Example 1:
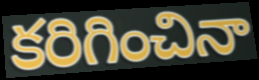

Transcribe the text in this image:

కరిగించినా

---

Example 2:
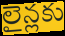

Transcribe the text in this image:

లైన్లకు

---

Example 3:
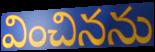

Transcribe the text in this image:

వించినను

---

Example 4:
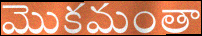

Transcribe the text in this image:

మొకమంతా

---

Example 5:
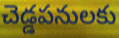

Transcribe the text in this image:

చెడ్డపనులకు